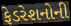
ફેડરેશનોની